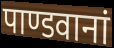
पाण्डवानां